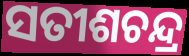
ସତୀଶଚନ୍ଦ୍ର